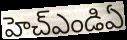
హెచ్ఎండిఏ